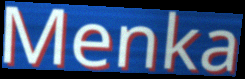
Menka